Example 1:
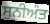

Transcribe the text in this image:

ਸੁਨੀਅੰਤ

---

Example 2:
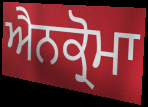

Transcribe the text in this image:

ਐਨਕ੍ਰੋਮਾ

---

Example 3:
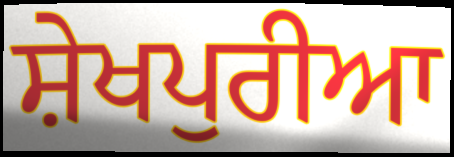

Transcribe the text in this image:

ਸ਼ੇਖਪੁਰੀਆ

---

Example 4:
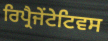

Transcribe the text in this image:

ਰਿਪ੍ਰੈਜੇਂਟੇਟਿਵਸ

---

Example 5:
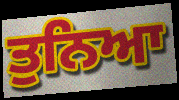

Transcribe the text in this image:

ਤੁਨਿਆ